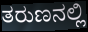
ತರುಣನಲ್ಲಿ